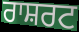
ਰਾਸ਼ਰਟ